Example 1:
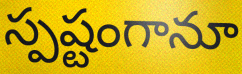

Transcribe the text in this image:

స్పష్టంగానూ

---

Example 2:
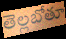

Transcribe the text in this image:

తెల్లబోతూ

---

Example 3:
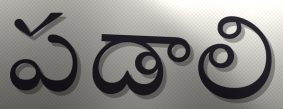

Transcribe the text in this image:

పడాలి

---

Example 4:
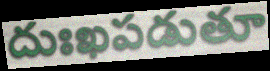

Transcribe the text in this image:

దుఃఖపడుతూ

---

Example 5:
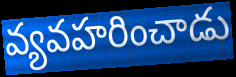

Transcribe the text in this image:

వ్యవహరించాడు